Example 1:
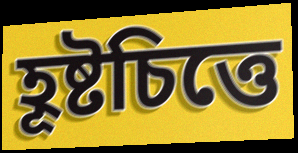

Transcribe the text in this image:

হূষ্টচিত্তে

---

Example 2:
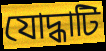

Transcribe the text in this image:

যোদ্ধাটি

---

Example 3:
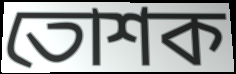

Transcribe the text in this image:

তোশক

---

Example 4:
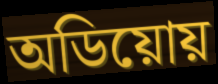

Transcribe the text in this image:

অডিয়োয়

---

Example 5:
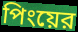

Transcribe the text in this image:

পিংয়ের